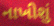
નાખીશું